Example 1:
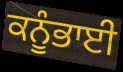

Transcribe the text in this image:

ਕਨੂੰਭਾਈ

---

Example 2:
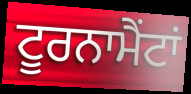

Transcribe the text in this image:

ਟੂਰਨਾਮੈਂਟਾਂ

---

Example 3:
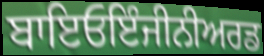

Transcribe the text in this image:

ਬਾਇਓਇੰਜੀਨੀਅਰਡ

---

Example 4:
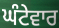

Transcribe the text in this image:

ਘੰਟੇਵਾਰ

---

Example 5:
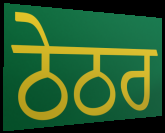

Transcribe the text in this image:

ਠੇਠਰ